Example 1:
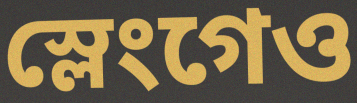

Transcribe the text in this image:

স্লেংগেও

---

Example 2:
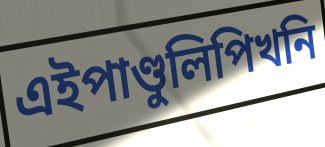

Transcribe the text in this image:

এইপাণ্ডুলিপিখনি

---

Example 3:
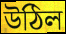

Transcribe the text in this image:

উঠিল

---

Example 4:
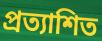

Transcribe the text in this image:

প্ৰত্যাশিত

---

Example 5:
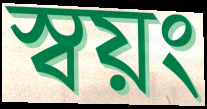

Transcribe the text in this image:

স্বয়ং